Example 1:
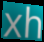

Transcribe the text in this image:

xh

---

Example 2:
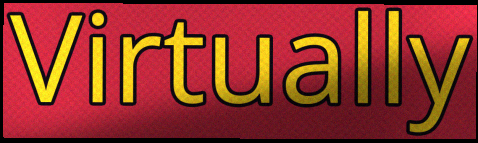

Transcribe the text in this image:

Virtually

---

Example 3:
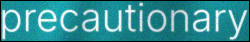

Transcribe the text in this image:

precautionary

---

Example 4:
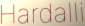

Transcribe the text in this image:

Hardalli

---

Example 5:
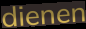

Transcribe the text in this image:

dienen